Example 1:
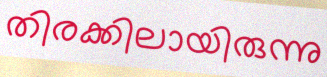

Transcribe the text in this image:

തിരക്കിലായിരുന്നു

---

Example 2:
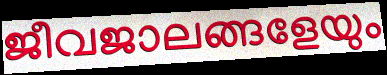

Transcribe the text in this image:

ജീവജാലങ്ങളേയും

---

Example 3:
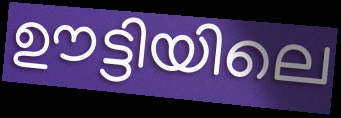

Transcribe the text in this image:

ഊട്ടിയിലെ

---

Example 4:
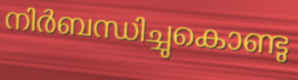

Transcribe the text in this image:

നിർബന്ധിച്ചുകൊണ്ടു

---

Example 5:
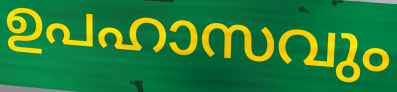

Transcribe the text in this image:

ഉപഹാസവും